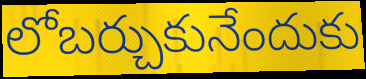
లోబర్చుకునేందుకు